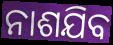
ନାଶଯିବ